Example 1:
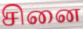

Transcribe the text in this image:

சினை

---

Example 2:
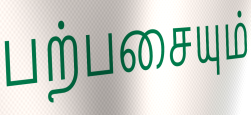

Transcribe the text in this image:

பற்பசையும்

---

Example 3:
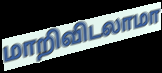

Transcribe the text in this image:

மாறிவிடலாமா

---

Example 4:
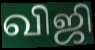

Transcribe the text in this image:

விஜி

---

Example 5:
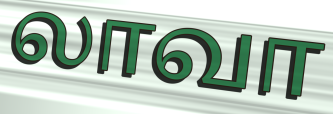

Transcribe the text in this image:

லாவா